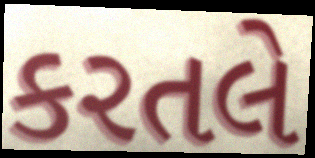
કરતલે